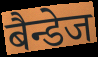
बैन्डेज